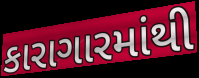
કારાગારમાંથી